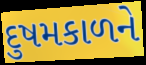
દુષમકાળને